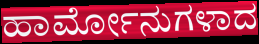
ಹಾರ್ಮೋನುಗಳಾದ